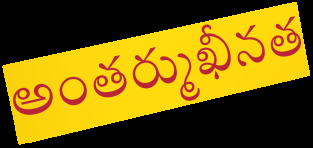
అంతర్ముఖీనత